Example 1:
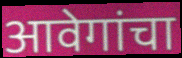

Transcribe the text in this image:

आवेगांचा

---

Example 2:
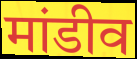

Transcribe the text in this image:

मांडीव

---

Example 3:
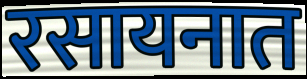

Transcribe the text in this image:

रसायनात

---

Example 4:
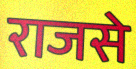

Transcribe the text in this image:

राजसे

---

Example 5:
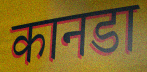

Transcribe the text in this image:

कानडा